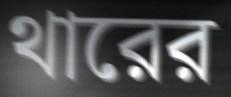
থারের